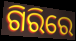
ଗିରିରେ